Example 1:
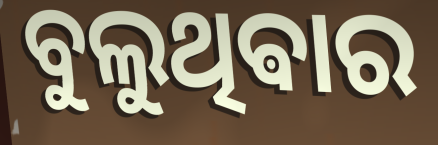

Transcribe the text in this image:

ବୁଲୁଥିଵାର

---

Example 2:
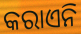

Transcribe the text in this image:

କରାଏନି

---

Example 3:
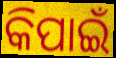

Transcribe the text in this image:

କିପାଇଁ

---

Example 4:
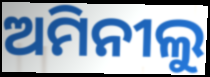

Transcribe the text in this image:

ଅମିନୀଲୁ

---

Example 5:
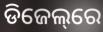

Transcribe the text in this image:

ଡିଜେଲ୍‌ରେ